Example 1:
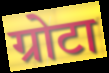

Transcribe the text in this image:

ग्रोटा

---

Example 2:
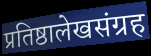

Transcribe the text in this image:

प्रतिष्ठालेखसंग्रह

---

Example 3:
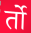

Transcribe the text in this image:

र्तो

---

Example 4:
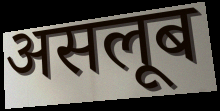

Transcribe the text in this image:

असलूब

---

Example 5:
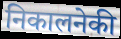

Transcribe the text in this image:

निकालनेकी